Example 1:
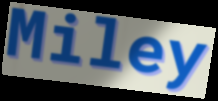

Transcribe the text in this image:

Miley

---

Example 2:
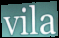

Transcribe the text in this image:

vila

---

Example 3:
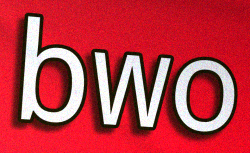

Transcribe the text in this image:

bwo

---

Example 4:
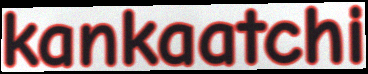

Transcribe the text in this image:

kankaatchi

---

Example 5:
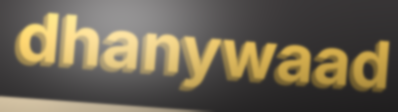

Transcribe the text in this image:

dhanywaad